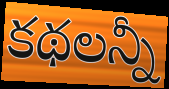
కథలన్నీ